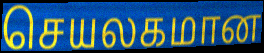
செயலகமான